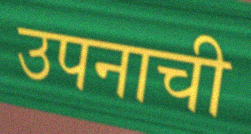
उपनाची